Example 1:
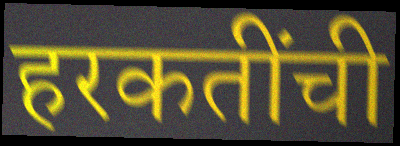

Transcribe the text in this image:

हरकतींची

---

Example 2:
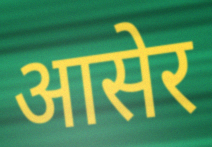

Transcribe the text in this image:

आसेर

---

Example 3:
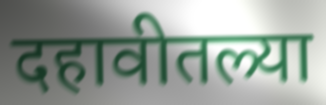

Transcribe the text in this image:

दहावीतल्या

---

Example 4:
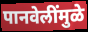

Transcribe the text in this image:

पानवेलींमुळे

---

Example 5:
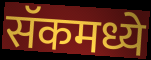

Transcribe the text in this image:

सॅकमध्ये